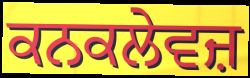
ਕਨਕਲੇਵਜ਼